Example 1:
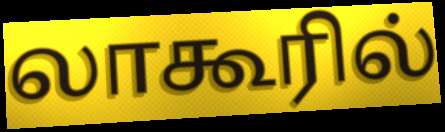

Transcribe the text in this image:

லாகூரில்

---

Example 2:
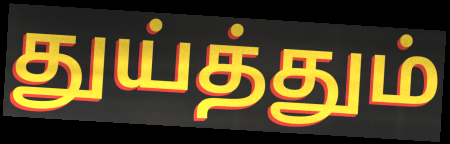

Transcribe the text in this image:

துய்த்தும்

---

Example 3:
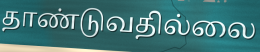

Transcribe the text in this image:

தாண்டுவதில்லை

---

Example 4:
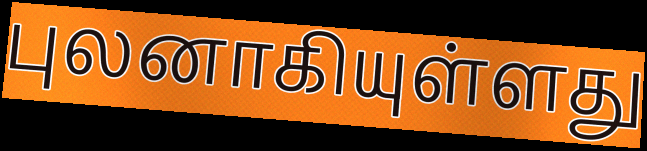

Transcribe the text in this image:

புலனாகியுள்ளது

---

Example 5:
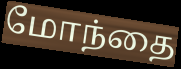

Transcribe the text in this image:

மோந்தை